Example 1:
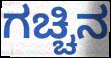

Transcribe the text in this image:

ಗಚ್ಚಿನ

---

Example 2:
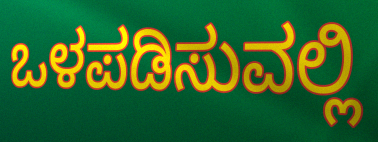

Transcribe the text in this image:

ಒಳಪಡಿಸುವಲ್ಲಿ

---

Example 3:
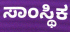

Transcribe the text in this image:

ಸಾಂಸ್ಥಿಕ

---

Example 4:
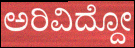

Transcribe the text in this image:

ಅರಿವಿದ್ದೋ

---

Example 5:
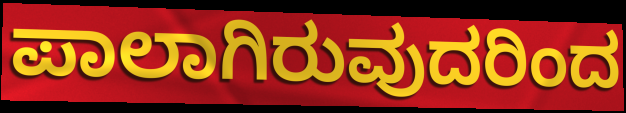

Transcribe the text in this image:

ಪಾಲಾಗಿರುವುದರಿಂದ